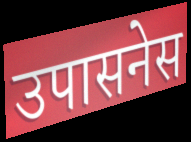
उपासनेस